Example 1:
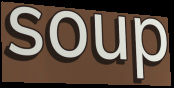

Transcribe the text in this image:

soup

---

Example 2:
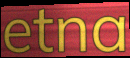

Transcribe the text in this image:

etna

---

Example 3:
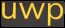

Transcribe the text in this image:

uwp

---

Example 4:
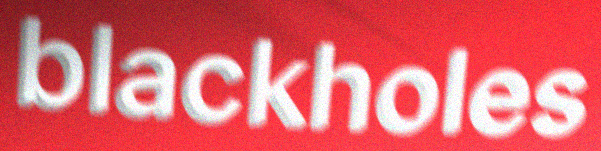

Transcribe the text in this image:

blackholes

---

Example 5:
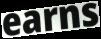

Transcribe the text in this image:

earns